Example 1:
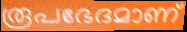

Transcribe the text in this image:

രൂപഭേദമാണ്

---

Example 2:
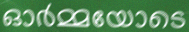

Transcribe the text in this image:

ഓർമ്മയോടെ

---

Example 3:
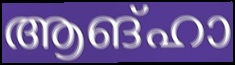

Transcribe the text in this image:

ആങ്ഹാ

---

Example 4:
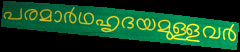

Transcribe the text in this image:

പരമാർഥഹൃദയമുള്ളവർ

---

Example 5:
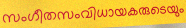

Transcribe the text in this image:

സംഗീതസംവിധായകരുടെയും